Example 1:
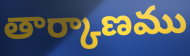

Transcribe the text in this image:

తార్కాణము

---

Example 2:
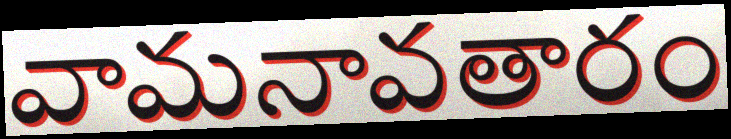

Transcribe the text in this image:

వామనావతారం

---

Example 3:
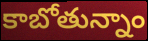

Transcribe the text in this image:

కాబోతున్నాం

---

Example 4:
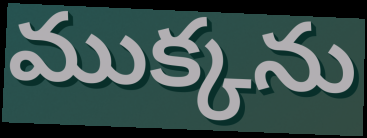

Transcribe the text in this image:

ముక్కను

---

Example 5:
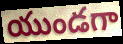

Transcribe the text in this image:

యుండగా